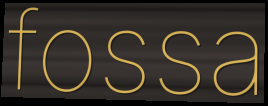
fossa